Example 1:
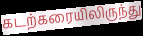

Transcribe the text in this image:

கடற்கரையிலிருந்து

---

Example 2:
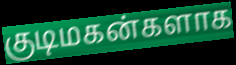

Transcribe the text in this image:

குடிமகன்களாக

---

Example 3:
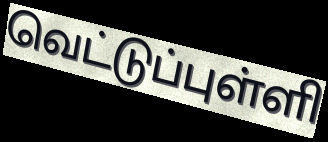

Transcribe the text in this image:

வெட்டுப்புள்ளி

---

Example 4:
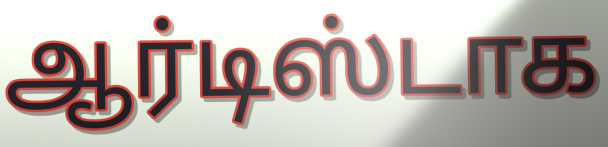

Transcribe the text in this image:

ஆர்டிஸ்டாக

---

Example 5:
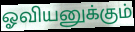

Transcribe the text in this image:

ஓவியனுக்கும்